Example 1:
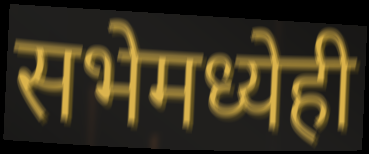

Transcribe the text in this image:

सभेमध्येही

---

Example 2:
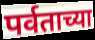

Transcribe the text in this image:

पर्वताच्या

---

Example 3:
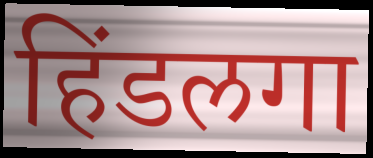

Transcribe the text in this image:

हिंडलगा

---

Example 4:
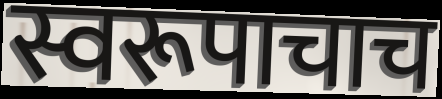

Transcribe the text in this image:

स्वरूपाचाच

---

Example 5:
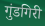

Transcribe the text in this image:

गुंडगिरी